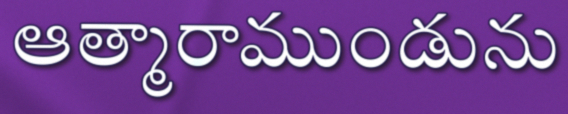
ఆత్మారాముండును